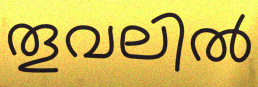
തൂവലിൽ